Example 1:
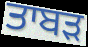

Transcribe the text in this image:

ਤਾਬੜ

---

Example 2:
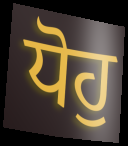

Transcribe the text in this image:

ਧੋਹੁ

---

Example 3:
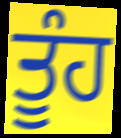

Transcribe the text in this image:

ਤੂੰਹ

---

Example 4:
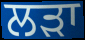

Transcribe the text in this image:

ਲੜਾ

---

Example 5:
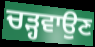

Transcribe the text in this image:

ਚੜ੍ਹਵਾਉਣ